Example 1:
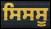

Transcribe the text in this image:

ਸਿਸਸੂ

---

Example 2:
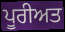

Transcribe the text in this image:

ਪੂਰੀਅਤ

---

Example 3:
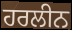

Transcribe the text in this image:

ਹਰਲੀਨ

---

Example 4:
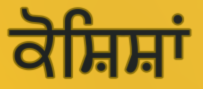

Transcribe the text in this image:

ਕੋਸ਼ਿਸ਼ਾਂ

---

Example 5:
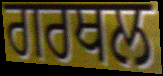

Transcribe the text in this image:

ਗਰਥਲ